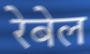
रेबेल